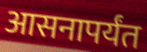
आसनापर्यंत